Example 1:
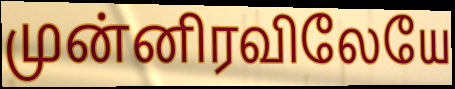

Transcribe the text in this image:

முன்னிரவிலேயே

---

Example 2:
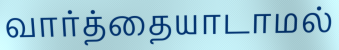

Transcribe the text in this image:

வார்த்தையாடாமல்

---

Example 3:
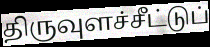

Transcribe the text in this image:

திருவுளச்சீட்டுப்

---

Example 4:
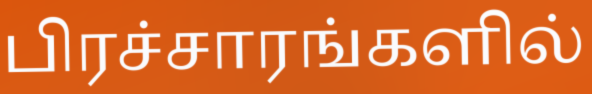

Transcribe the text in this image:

பிரச்சாரங்களில்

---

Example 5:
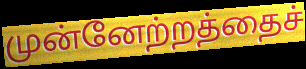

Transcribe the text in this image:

முன்னேற்றத்தைச்